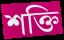
শক্তি